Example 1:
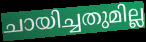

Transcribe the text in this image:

ചായിച്ചതുമില്ല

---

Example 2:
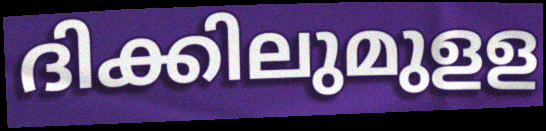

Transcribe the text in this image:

ദിക്കിലുമുളള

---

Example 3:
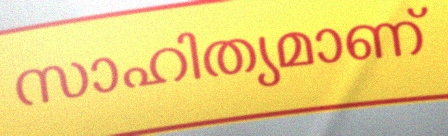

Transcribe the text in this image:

സാഹിത്യമാണ്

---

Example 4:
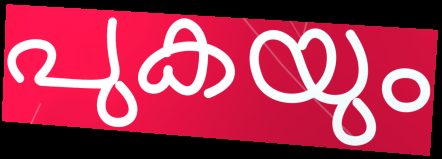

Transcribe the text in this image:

പുകയും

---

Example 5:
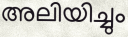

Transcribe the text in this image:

അലിയിച്ചും